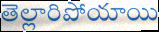
తెల్లారిపోయాయి